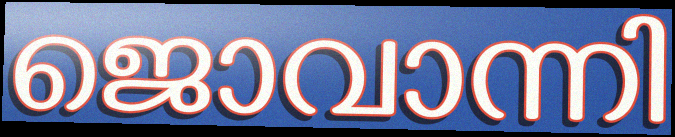
ജൊവാന്നി